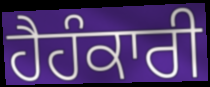
ਹੈਹੰਕਾਰੀ